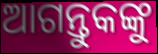
ଆଗନ୍ତୁକଙ୍କୁ